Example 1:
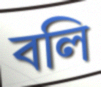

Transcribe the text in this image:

বলি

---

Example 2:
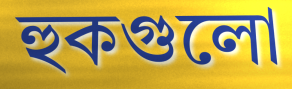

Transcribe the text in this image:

হুকগুলো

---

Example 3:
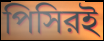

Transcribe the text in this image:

পিসিরই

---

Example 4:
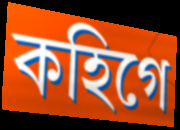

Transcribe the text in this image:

কহিগে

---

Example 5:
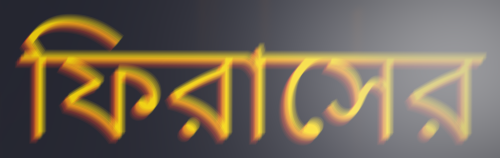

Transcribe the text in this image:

ফিরাসের